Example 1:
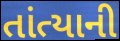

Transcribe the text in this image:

તાંત્યાની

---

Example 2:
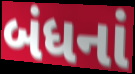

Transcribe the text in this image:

બંધનાં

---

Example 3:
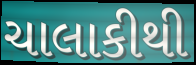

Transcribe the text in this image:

ચાલાકીથી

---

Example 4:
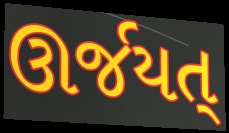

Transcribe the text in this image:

ઊર્જયત્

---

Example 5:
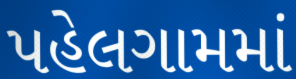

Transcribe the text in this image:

પહેલગામમાં